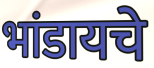
भांडायचे